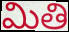
మితి